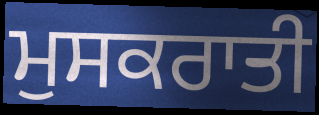
ਮੁਸਕਰਾਤੀ